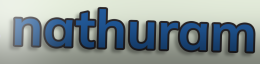
nathuram